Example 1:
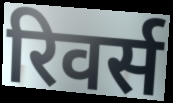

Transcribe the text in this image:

रिवर्स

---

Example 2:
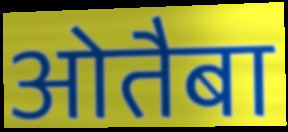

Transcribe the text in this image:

ओतैबा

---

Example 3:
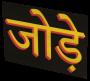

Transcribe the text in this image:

जोड़े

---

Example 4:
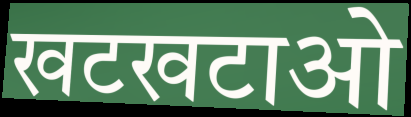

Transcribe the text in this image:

खटखटाओ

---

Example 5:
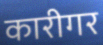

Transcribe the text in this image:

कारीगर